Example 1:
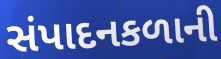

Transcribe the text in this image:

સંપાદનકળાની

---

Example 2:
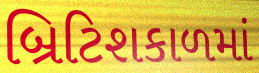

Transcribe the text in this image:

બ્રિટિશકાળમાં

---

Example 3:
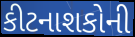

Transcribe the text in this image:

કીટનાશકોની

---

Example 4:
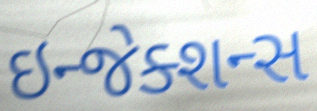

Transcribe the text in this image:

ઇન્જેક્શન્સ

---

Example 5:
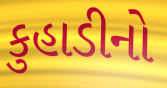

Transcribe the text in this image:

કુહાડીનો